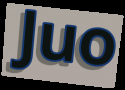
Juo